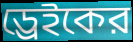
ড্রেইকের